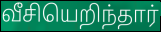
வீசியெறிந்தார்